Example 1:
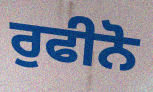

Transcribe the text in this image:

ਰੁਫੀਨੋ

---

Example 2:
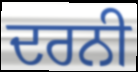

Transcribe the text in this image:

ਦਰਨੀ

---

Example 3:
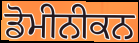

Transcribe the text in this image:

ਡੋਮੀਨੀਕਨ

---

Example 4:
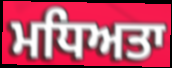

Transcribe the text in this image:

ਮਧਿਅਤਾ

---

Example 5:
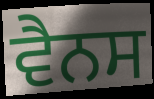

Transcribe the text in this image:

ਵੈਨਸ